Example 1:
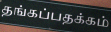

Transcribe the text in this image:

தங்கப்பதக்கம்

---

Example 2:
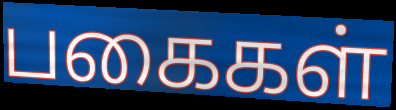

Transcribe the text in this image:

பகைகள்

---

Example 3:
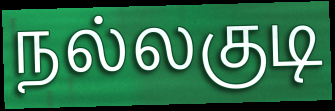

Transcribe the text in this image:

நல்லகுடி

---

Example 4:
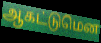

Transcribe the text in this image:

ஆகட்டுமென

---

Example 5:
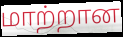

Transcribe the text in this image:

மாற்றான